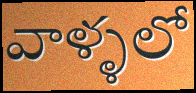
వాళ్ళలో